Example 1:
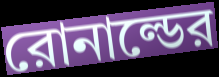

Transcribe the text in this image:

রোনাল্ডের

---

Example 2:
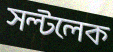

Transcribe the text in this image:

সল্টলেক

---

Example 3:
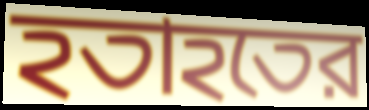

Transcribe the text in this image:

হতাহতের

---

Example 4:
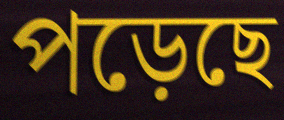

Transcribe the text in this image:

পড়েছে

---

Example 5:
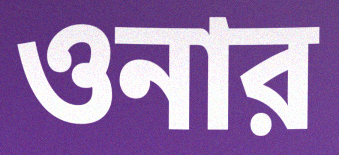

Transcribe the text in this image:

ওনার